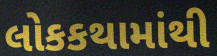
લોકકથામાંથી